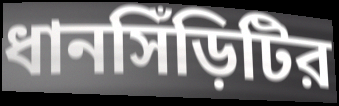
ধানসিঁড়িটির